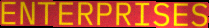
ENTERPRISES